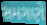
સમગણે